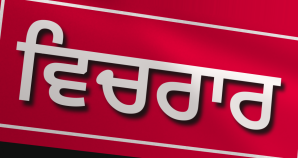
ਵਿਚਰਾਰ